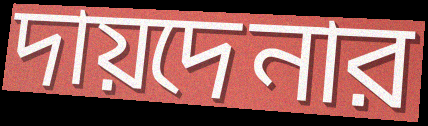
দায়দেনার